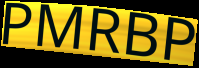
PMRBP